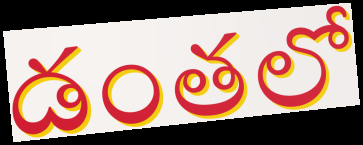
డంతలో